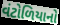
વંટોળિયાનો